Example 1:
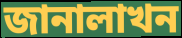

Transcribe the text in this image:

জানালাখন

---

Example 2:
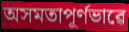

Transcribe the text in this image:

অসমতাপূৰ্ণভাৱে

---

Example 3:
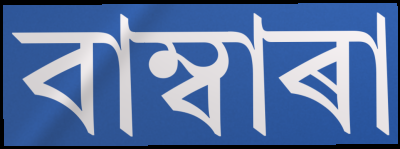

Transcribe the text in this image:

বাম্বাৰা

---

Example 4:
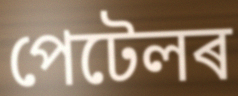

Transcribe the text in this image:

পেটেলৰ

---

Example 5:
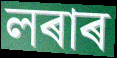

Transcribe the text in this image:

লৰাৰ